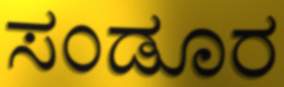
ಸಂಡೂರ